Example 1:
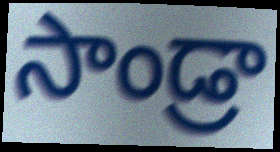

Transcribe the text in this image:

సాండ్రా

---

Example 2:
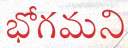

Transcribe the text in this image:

భోగమని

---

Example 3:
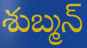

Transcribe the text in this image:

శుబ్మన్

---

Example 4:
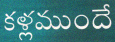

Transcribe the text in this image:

కళ్లముందే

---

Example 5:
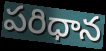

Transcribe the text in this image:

పరిధాన